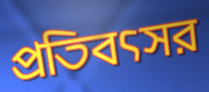
প্রতিবৎসর